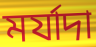
মর্যাদা